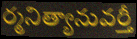
ర్మనిత్యానువర్తీ